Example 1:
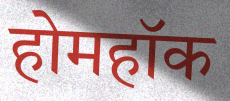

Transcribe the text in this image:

होमहॉक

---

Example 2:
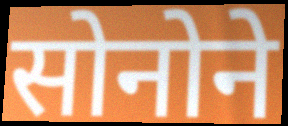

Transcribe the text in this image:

सोनोने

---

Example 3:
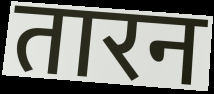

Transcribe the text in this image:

तारन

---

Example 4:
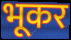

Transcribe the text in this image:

भूकर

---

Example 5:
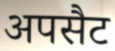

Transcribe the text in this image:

अपसैट